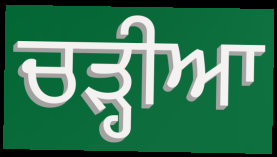
ਚੜ੍ਹੀਆ